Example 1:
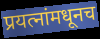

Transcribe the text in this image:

प्रयत्नांमधूनच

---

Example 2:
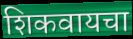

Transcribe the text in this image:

शिकवायचा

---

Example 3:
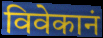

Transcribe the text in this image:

विवेकानं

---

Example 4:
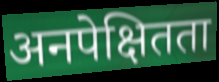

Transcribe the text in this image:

अनपेक्षितता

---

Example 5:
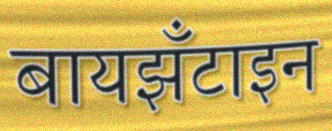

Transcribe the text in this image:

बायझँटाइन